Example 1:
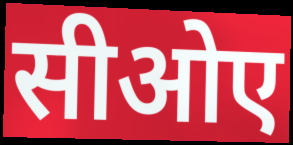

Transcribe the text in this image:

सीओए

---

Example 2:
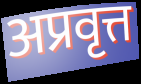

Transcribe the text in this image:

अप्रवृत्त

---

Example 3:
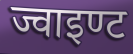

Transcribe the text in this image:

ज्वाइण्ट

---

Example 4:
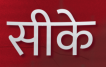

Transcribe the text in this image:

सीके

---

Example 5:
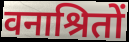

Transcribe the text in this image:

वनाश्रितों